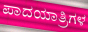
ಪಾದಯಾತ್ರಿಗಳ